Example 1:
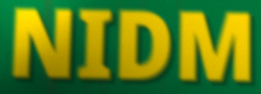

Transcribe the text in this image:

NIDM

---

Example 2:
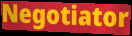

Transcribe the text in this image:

Negotiator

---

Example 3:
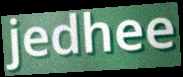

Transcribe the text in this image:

jedhee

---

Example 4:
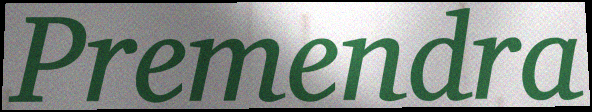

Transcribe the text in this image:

Premendra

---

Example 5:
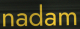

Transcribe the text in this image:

nadam